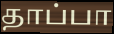
தாப்பா